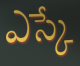
ఎస్కే